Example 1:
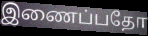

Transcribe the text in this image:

இணைப்பதோ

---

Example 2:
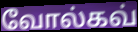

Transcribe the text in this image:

வோல்கவ்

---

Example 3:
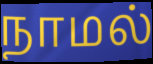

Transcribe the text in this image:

நாமல்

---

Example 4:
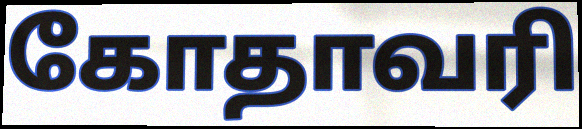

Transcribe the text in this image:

கோதாவரி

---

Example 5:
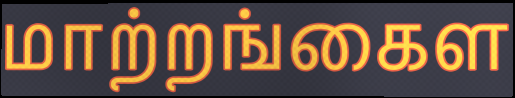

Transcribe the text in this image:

மாற்றங்கைள